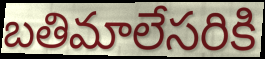
బతిమాలేసరికి